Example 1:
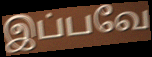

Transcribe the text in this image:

இப்பவே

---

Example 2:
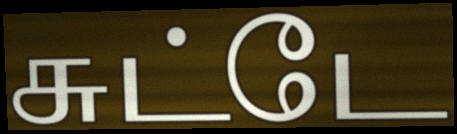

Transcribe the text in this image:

சுட்டே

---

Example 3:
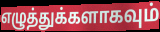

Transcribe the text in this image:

எழுத்துக்களாகவும்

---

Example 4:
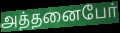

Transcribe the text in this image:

அத்தனைபேர்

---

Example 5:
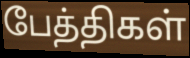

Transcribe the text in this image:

பேத்திகள்